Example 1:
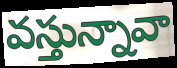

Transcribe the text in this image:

వస్తున్నావా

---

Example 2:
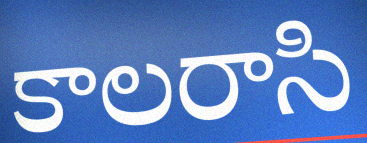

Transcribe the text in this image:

కాలరాసి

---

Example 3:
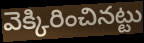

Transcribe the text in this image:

వెక్కిరించినట్టు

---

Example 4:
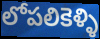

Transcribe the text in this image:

లోపలికెళ్ళి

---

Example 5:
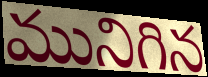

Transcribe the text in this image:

మునిగిన